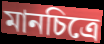
মানচিত্রে